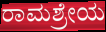
ರಾಮಶ್ರೇಯ